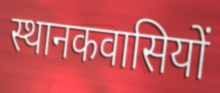
स्थानकवासियों